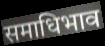
समाधिभाव